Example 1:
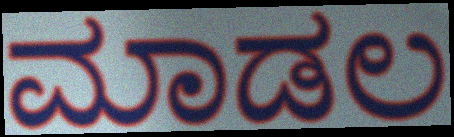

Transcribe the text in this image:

ಮಾಡಲ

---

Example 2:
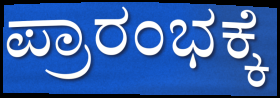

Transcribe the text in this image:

ಪ್ರಾರಂಭಕ್ಕೆ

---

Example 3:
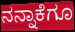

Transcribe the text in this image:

ನನ್ನಾಕೆಗೂ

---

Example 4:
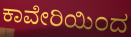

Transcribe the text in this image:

ಕಾವೇರಿಯಿಂದ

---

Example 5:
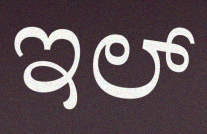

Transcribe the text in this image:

ಇಲ್